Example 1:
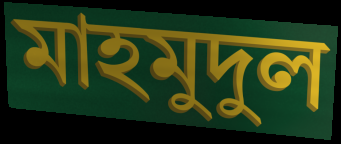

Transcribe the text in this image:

মাহমুদুল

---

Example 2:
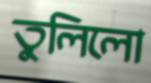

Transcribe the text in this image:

তুলিলো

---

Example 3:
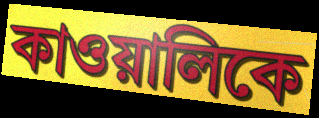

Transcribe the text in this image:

কাওয়ালিকে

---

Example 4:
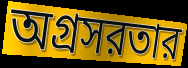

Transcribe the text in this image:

অগ্রসরতার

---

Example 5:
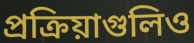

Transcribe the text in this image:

প্রক্রিয়াগুলিও